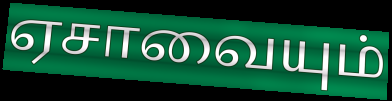
ஏசாவையும்